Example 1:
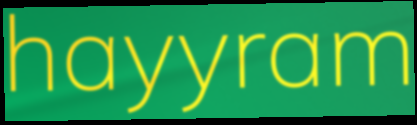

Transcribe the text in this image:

hayyram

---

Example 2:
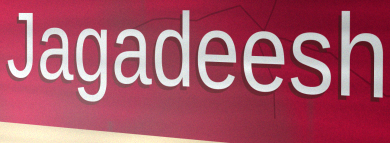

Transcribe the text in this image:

Jagadeesh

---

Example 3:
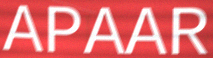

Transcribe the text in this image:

APAAR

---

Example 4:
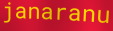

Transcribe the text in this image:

janaranu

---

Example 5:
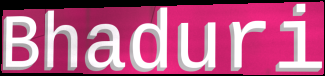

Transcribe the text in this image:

Bhaduri